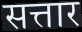
सत्तार